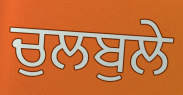
ਚੁਲਬੁਲੇ